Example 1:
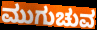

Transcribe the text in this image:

ಮುಗುಚುವ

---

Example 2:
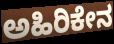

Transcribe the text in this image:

ಅಹಿರಿಕೇನ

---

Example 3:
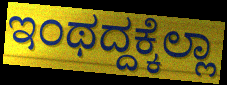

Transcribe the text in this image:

ಇಂಥದ್ದಕ್ಕೆಲ್ಲಾ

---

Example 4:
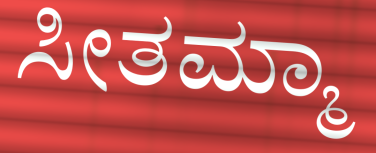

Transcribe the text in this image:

ಸೀತಮ್ಮಾ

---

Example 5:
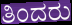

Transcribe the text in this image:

ತಿಂದರು